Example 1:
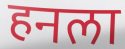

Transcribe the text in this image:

हनला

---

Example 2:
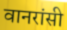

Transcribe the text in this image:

वानरांसी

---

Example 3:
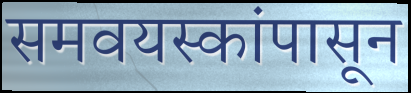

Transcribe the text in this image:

समवयस्कांपासून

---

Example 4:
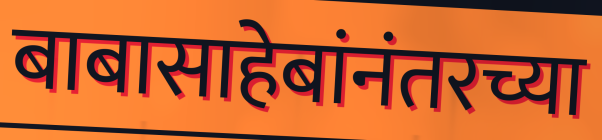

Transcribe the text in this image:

बाबासाहेबांनंतरच्या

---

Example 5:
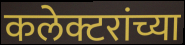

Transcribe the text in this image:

कलेक्टरांच्या